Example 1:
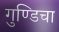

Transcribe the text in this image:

गुण्डिचा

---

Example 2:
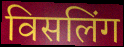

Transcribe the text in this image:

विसलिंग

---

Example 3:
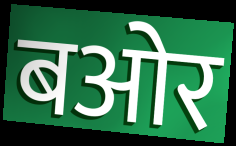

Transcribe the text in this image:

बओर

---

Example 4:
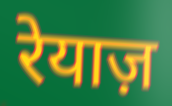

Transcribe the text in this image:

रेयाज़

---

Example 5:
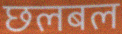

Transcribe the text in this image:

छलबल